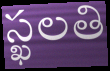
స్ఖలతి